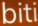
biti